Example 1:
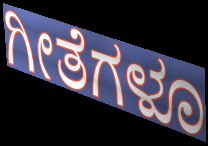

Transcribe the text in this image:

ಗೀತೆಗಳೂ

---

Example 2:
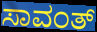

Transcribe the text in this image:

ಸಾವಂತ್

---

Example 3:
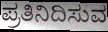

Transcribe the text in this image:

ಪ್ರತಿನಿದಿಸುವ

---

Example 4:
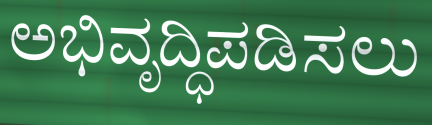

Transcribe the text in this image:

ಅಭಿವೃದ್ಧಿಪಡಿಸಲು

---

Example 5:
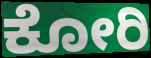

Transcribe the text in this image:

ಕೋರಿ